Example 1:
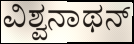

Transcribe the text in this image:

ವಿಶ್ವನಾಥನ್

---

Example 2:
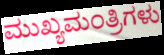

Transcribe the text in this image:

ಮುಖ್ಯಮಂತ್ರಿಗಳು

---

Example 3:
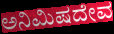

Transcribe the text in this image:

ಅನಿಮಿಷದೇವ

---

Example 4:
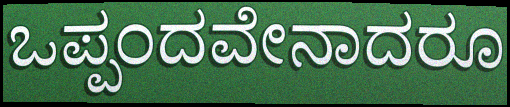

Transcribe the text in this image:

ಒಪ್ಪಂದವೇನಾದರೂ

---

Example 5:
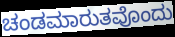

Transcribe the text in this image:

ಚಂಡಮಾರುತವೊಂದು